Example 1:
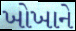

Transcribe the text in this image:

ખોખાને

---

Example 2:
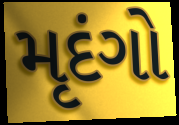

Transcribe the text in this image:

મૃદંગો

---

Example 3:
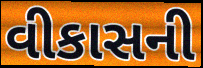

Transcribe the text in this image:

વીકાસની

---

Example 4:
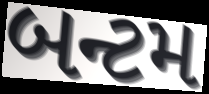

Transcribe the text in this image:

બન્ટમ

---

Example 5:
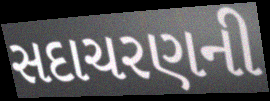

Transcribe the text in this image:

સદાચરણની